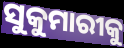
ସୁକୁମାରୀକୁ